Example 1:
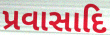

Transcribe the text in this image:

પ્રવાસાદિ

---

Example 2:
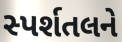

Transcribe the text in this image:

સ્પર્શતલને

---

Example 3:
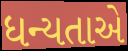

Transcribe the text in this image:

ધન્યતાએ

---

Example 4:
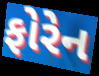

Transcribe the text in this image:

ફોરેન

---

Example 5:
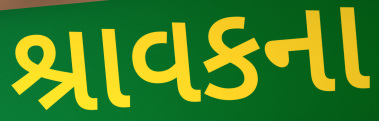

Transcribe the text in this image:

શ્રાવકના